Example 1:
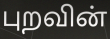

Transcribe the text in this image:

புறவின்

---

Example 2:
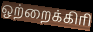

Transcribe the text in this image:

ஒற்றைக்கிரி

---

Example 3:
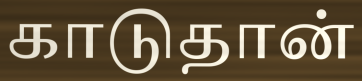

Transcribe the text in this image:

காடுதான்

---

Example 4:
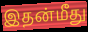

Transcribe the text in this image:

இதன்மீது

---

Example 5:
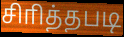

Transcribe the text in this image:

சிரித்தபடி